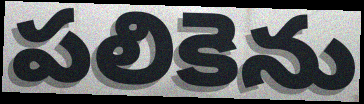
పలికెను